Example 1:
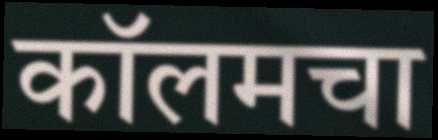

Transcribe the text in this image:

कॉलमचा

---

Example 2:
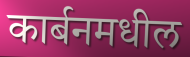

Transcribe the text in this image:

कार्बनमधील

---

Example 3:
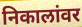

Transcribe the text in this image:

निकालांवर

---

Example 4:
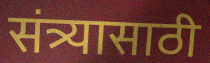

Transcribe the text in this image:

संत्र्यासाठी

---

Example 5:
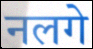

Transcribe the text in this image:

नलगे